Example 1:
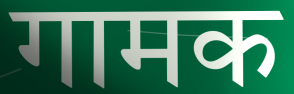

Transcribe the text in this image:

गामक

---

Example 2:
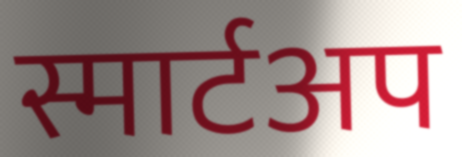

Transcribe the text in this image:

स्मार्टअप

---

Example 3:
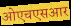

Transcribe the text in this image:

ओएचएसआर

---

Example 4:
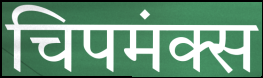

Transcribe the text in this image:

चिपमंक्स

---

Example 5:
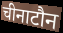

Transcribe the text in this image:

चीनाटौन